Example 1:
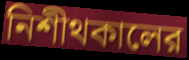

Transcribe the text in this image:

নিশীথকালের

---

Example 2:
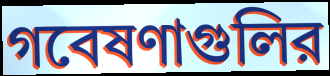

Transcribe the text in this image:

গবেষণাগুলির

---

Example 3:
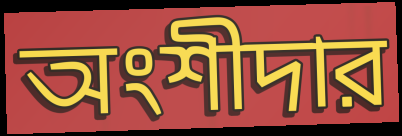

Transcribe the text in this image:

অংশীদার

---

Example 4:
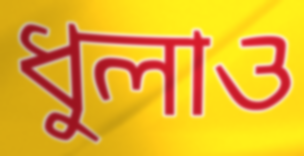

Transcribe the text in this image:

ধুলাও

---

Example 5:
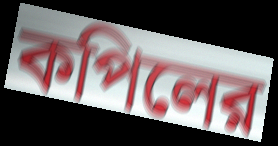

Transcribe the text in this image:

কপিলের